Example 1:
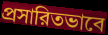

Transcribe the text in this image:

প্রসারিতভাবে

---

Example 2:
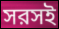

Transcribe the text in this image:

সরসই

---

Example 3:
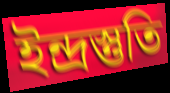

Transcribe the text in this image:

ইন্দ্রস্তুতি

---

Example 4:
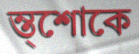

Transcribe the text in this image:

ম্ত্শোকে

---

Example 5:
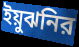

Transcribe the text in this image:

ইয়ুঝনির